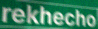
rekhecho